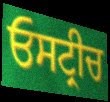
ਓਸਟ੍ਰੀਚ